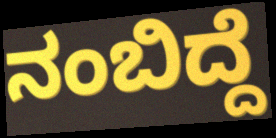
ನಂಬಿದ್ದೆ